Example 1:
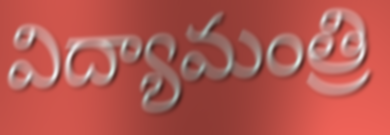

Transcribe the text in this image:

విద్యామంత్రి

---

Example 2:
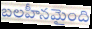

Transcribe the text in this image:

బలహీనమైంది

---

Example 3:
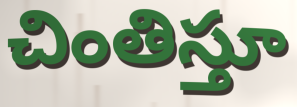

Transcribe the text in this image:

చింతిస్తూ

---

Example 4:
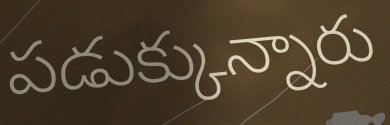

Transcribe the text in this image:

పడుక్కున్నారు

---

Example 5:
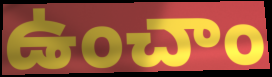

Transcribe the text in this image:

ఉంచాం